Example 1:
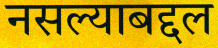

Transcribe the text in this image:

नसल्याबद्दल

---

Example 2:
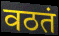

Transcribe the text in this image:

वठतं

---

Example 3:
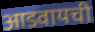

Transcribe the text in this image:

आडवायची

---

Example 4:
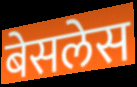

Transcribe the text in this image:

बेसलेस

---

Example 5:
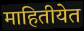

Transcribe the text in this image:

माहितीयेत